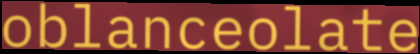
oblanceolate